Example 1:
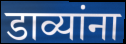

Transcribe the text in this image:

डाव्यांना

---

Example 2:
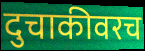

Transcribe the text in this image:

दुचाकीवरच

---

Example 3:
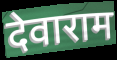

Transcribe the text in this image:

देवाराम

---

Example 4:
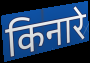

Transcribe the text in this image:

किनारे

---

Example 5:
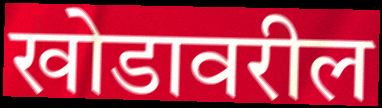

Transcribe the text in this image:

खोडावरील